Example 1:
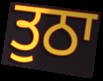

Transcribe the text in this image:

ਤੁਠਾ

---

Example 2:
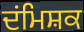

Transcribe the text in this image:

ਦਂਮਿਸ਼ਕ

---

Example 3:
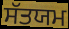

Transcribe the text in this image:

ਸੱਤਯਮ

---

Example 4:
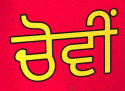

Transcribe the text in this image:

ਚੋਵੀਂ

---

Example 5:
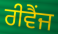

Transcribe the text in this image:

ਰੀਵੈਂਜ